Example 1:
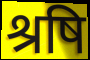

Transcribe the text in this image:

श्रषि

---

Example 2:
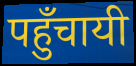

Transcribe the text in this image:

पहुँचायी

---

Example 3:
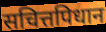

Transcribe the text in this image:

सचित्तपिधान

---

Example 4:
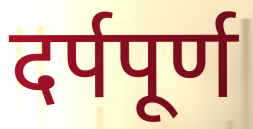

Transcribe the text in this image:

दर्पपूर्ण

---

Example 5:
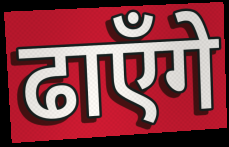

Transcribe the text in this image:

ढाएँगे